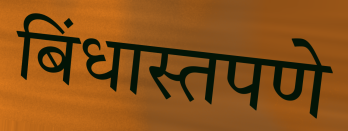
बिंधास्तपणे